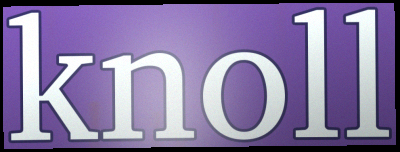
knoll